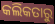
କଲିକତାରୁ